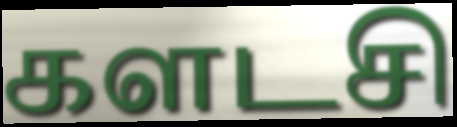
களடசி